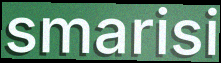
smarisi